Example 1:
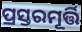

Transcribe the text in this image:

ପ୍ରସ୍ତରମୂର୍ତ୍ତି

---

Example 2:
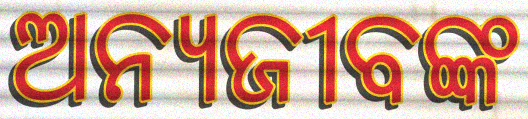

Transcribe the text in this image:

ଅନ୍ୟଜୀବଙ୍କ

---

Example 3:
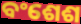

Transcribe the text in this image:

ବଂଶେଶ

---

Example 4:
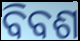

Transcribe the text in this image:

ବିବଶ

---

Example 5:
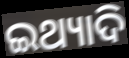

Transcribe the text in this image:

ଇଥ୍ୟାଦି